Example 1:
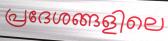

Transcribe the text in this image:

പ്രദേശങ്ങളിലെ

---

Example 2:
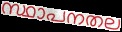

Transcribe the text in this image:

സ്ഥാപനതല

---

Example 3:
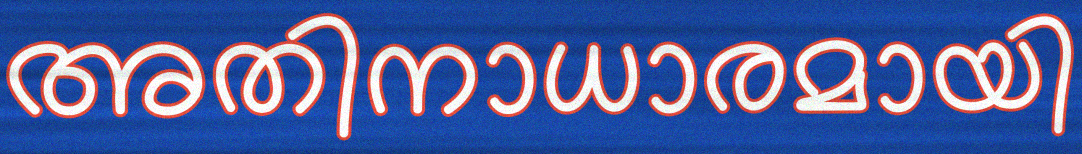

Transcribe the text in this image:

അതിനാധാരമായി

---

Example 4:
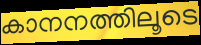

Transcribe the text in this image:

കാനനത്തിലൂടെ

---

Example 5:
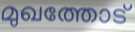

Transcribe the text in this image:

മുഖത്തോട്